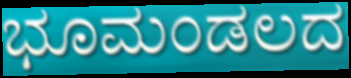
ಭೂಮಂಡಲದ